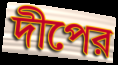
দীপের